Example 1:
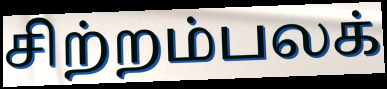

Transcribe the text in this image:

சிற்றம்பலக்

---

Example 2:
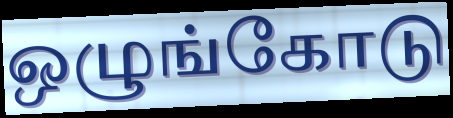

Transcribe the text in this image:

ஒழுங்கோடு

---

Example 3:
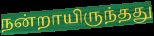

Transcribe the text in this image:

நன்றாயிருந்தது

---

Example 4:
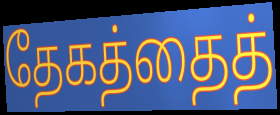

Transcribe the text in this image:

தேகத்தைத்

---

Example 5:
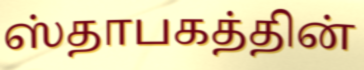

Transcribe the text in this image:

ஸ்தாபகத்தின்